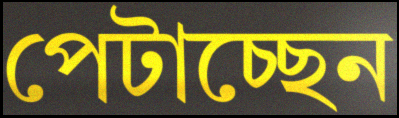
পেটাচ্ছেন